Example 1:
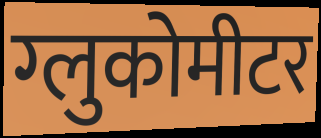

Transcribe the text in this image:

ग्लुकोमीटर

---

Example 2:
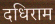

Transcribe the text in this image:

दधिराम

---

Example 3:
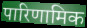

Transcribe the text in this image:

पारिणामिक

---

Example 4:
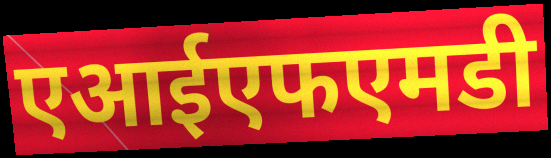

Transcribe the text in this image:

एआईएफएमडी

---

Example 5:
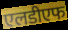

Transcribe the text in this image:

एलडीएफ